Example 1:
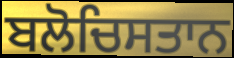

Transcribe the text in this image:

ਬਲੋਚਿਸਤਾਨ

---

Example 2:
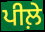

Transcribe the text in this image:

ਪੀਲ਼ੇ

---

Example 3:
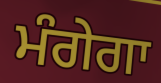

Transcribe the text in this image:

ਮੰਗੇਗਾ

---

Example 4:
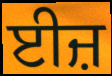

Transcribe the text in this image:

ਈਜ਼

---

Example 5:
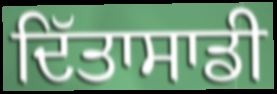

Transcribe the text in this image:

ਦਿੱਤਾਸਾਡੀ